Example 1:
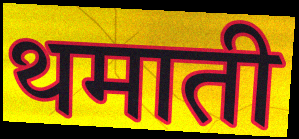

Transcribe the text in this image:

थमाती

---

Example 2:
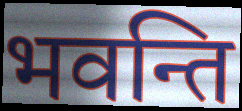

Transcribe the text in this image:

भवन्ति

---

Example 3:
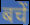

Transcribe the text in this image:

बचें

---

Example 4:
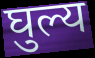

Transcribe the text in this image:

घुल्य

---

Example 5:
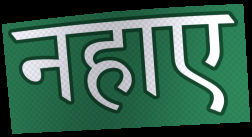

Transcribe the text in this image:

नहाए